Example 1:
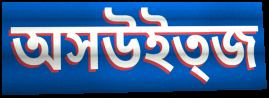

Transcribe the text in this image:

অসউইত্জ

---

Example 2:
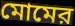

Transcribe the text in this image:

মোমের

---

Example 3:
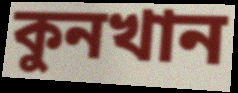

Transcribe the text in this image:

কুনখান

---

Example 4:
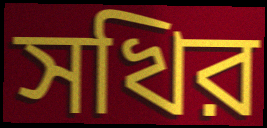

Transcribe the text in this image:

সখির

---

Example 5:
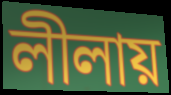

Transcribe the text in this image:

লীলায়